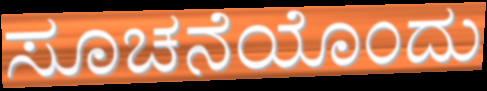
ಸೂಚನೆಯೊಂದು